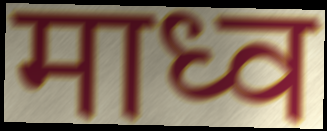
माध्व